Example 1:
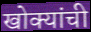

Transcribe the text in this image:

खोक्यांची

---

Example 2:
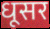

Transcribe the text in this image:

धूसर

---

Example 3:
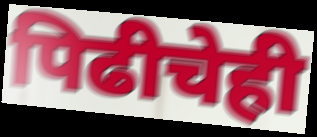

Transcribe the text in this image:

पिढीचेही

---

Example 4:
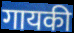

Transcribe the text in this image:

गायकी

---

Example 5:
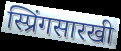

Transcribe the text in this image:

स्प्रिंगसारखी